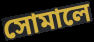
সোমালে